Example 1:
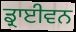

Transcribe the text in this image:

ਡ੍ਰਾਈਵਨ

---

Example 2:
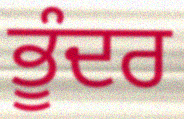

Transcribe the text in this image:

ਭੂੰਦਰ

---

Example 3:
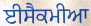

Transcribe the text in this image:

ਈਸੈਕਮੀਆ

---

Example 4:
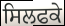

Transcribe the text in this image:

ਸਿਲਫਕੇ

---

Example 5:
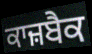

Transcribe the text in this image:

ਕਾਜ਼ਬੈਕ